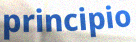
principio